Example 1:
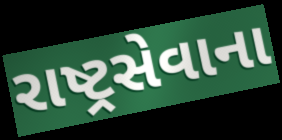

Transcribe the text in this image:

રાષ્ટ્રસેવાના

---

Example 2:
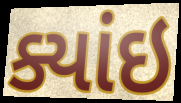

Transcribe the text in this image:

ક્યાંઇ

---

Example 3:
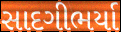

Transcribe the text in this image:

સાદગીભર્યા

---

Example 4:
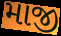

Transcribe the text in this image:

માજી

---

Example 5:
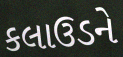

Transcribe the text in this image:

કલાઉડને